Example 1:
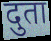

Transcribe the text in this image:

दुता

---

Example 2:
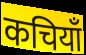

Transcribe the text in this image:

कचियाँ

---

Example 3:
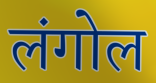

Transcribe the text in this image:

लंगोल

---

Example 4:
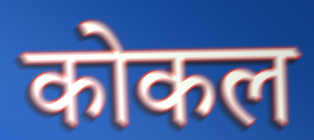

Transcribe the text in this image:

कोकल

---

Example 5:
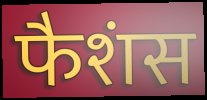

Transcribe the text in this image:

फैशंस